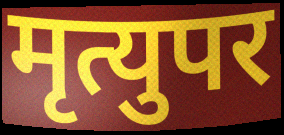
मृत्युपर